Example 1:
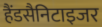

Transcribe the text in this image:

हैंडसैनिटाइजर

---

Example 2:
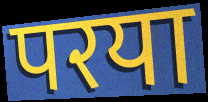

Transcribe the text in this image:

परया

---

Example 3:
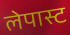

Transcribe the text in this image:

लेपास्ट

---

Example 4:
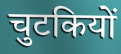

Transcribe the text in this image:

चुटकियों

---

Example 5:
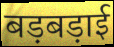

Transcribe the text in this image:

बड़बड़ाई